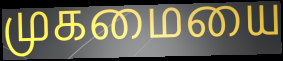
முகமையை